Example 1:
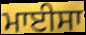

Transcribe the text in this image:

ਮਾਈਸਾ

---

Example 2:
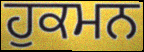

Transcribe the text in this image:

ਹੁਕਮਨ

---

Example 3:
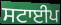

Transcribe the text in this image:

ਸਟਾਈਪ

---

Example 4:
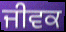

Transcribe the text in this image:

ਜੀਵਕ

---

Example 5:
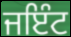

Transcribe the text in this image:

ਜਇੰਟ